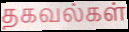
தகவல்கள்